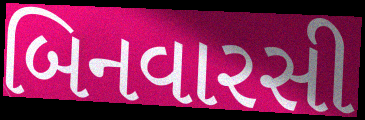
બિનવારસી